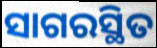
ସାଗରସ୍ଥିତ